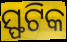
ସ୍ଫଟିକ